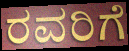
ರವರಿಗೆ